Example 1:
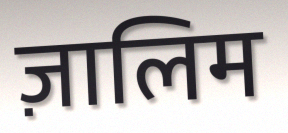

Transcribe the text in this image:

ज़ालिम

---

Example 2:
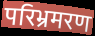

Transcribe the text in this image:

परिभ्रमरण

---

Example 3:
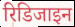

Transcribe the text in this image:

रिडिजाइन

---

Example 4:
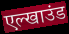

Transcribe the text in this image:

एल्खाउंड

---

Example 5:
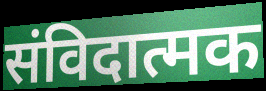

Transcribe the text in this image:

संविदात्मक